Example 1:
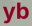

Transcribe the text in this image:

yb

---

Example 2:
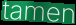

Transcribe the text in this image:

tamen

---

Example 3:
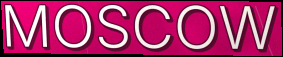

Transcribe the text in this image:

MOSCOW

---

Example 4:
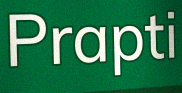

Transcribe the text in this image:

Prapti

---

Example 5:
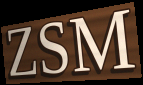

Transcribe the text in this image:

ZSM